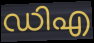
ഡിഎ